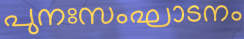
പുനഃസംഘാടനം